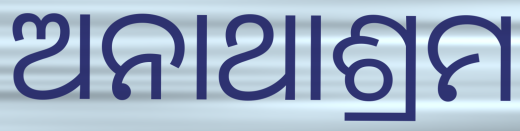
ଅନାଥାଶ୍ରମ